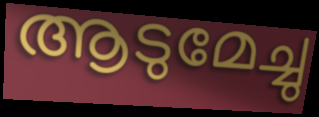
ആടുമേച്ചു